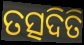
ତତ୍ସଦିତି